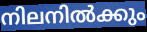
നിലനിൽക്കും